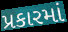
પ્રકારમાં